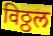
विठ्ठल